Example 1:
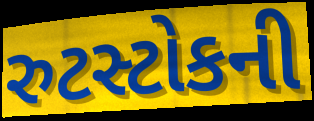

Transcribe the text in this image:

રુટસ્ટોકની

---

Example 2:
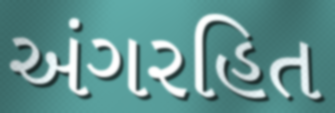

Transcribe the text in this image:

અંગરહિત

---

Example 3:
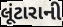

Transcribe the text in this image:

લૂંટારાની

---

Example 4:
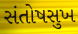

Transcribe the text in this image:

સંતોષસુખ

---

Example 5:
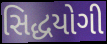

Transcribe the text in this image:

સિદ્ધયોગી